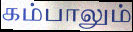
கம்பாலும்